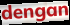
dengan